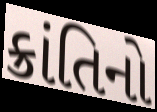
ક્રાંતિનો